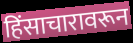
हिंसाचारावरून